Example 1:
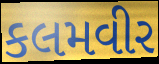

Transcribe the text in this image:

કલમવીર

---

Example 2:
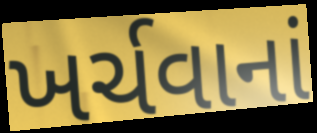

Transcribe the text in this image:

ખર્ચવાનાં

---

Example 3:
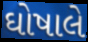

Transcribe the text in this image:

ઘોષાલે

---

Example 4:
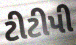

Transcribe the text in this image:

ટીટીપી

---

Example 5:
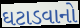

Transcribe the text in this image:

ઘટાડવાનો